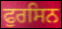
ਫੁਰਸਿਨ